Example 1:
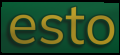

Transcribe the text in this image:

esto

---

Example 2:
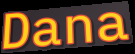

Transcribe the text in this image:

Dana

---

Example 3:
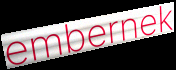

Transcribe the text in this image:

embernek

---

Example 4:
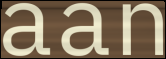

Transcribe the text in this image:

aan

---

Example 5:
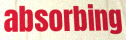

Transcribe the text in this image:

absorbing